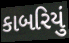
કાબરિયું